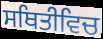
ਸਥਿਤੀਵਿਚ